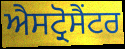
ਐਸਟ੍ਰੋਸੈਂਟਰ